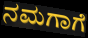
ನಮಗಾಗೆ